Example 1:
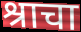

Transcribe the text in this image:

श्राचा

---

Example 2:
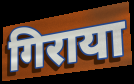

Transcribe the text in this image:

गिराया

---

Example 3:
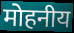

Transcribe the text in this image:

मोहनीय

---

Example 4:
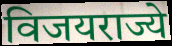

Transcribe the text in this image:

विजयराज्ये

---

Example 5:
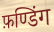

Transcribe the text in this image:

फ़ण्डिंग